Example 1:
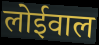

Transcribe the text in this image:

लोईवाल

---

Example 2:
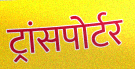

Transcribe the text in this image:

ट्रांसपोर्टर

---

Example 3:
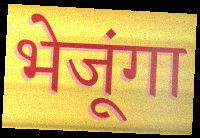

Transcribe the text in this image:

भेजूंगा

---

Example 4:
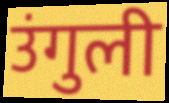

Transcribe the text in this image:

उंगुली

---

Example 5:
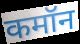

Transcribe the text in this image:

कमॉन